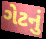
ગેટનું